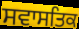
ਸਵਾਸਤਿਕ